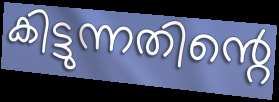
കിട്ടുന്നതിന്റെ